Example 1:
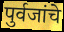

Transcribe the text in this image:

पुर्वजांचे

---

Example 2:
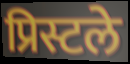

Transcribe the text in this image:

प्रिस्टले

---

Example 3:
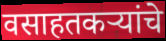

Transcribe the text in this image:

वसाहतकऱ्यांचे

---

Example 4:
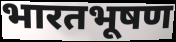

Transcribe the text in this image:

भारतभूषण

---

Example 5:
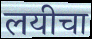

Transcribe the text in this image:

लयीचा